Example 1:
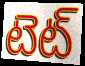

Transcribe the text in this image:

టెట్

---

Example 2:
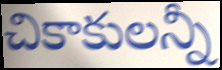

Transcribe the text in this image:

చికాకులన్నీ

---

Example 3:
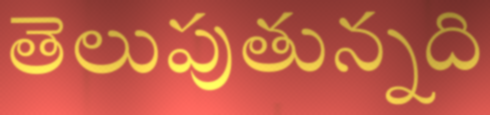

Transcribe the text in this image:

తెలుపుతున్నది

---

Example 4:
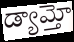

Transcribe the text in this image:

డ్యామ్తో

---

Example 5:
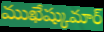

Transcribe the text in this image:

ముఖేష్కుమార్